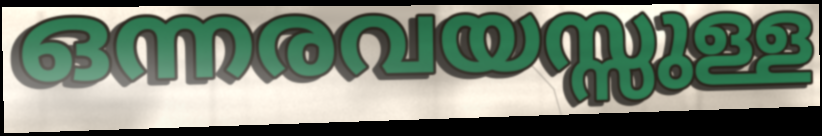
ഒന്നരവയസ്സുള്ള